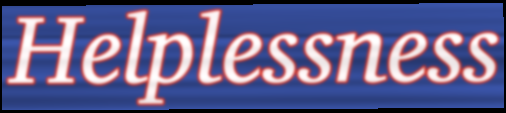
Helplessness